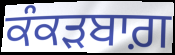
ਕੰਕੜਬਾਗ਼